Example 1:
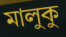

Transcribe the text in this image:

মালুকু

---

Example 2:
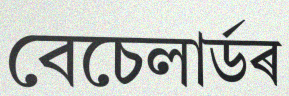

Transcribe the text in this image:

বেচেলাৰ্ডৰ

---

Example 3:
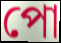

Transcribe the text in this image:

পো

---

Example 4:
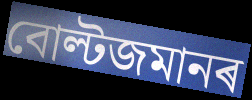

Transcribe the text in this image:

বোল্টজমানৰ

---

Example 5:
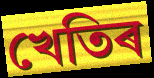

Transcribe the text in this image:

খেতিৰ